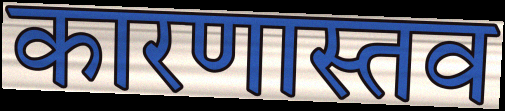
कारणास्तव